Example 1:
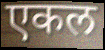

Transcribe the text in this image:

एकल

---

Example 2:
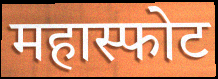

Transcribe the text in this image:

महास्फोट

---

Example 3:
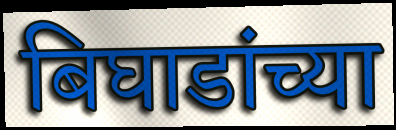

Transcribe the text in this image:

बिघाडांच्या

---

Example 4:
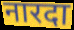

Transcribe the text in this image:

नारदा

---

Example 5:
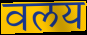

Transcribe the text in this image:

वलय